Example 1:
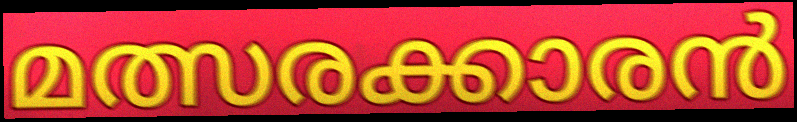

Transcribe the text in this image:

മത്സരക്കാരൻ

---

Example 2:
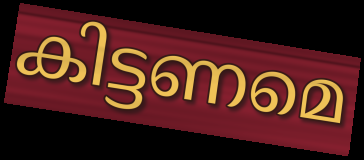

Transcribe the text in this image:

കിട്ടണമെ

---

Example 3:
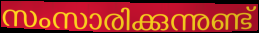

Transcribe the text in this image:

സംസാരിക്കുന്നുണ്ട്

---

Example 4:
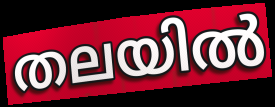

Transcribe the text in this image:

തലയിൽ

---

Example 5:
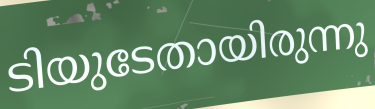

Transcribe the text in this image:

ടിയുടേതായിരുന്നു